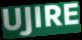
UJIRE